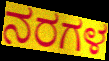
ನರಗಳ